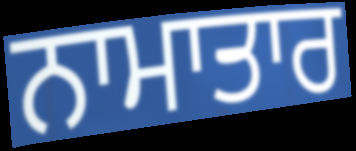
ਨਾਮਾਤਾਰ